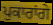
ਪੁਕਾਰਾਂਗੇ